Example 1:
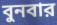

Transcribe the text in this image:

বুনবার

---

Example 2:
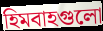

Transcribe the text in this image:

হিমবাহগুলো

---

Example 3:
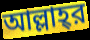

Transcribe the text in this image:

আল্লাহ্‌র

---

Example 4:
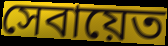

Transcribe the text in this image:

সেবায়েত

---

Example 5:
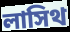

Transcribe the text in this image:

লাসিথ